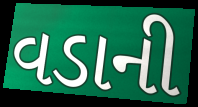
વડાની